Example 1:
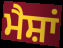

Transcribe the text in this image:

ਮੈਸ਼ਾਂ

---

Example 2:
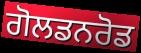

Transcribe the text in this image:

ਗੋਲਡਨਰੋਡ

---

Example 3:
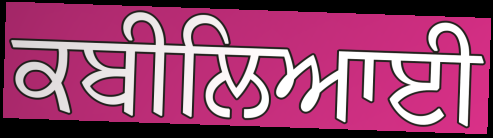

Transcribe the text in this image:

ਕਬੀਲਿਆਈ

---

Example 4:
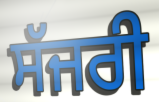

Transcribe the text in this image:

ਸੱਜਰੀ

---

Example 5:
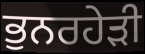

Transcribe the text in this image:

ਭੁਨਰਹੇੜੀ